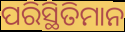
ପରିସ୍ଥିତିମାନ